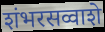
शंभरसव्वाशे